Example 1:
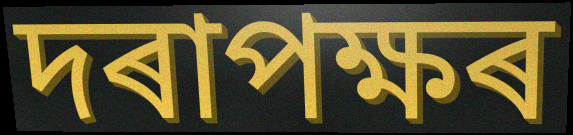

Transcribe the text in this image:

দৰাপক্ষৰ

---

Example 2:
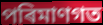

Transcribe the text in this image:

পৰিমাণগত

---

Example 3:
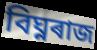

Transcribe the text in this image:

বিঘ্নৰাজ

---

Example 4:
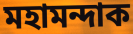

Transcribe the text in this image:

মহামন্দাক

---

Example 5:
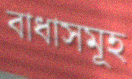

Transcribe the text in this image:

বাধাসমূহ